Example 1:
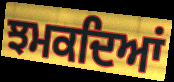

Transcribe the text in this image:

ਝਮਕਦਿਆਂ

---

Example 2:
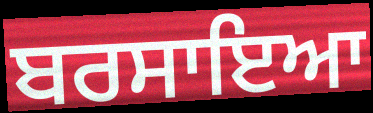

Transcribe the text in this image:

ਬਰਸਾਇਆ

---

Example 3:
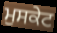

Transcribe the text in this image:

ਮੁਸਕੇਟ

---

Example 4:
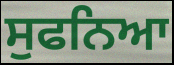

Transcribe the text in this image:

ਸੁਫਨਿਆ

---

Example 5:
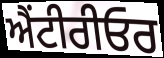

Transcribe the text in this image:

ਐਂਟੀਰੀਓਰ